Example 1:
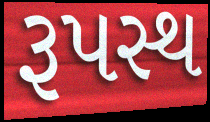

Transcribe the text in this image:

રૂપસ્થ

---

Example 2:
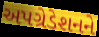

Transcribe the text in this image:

અપગ્રેડેશનને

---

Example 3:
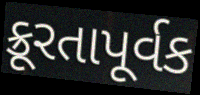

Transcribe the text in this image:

ક્રૂરતાપૂર્વક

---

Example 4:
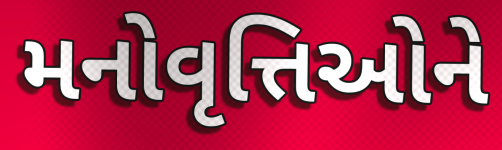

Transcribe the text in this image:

મનોવૃત્તિઓને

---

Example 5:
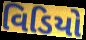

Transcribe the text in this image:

વિડિયો